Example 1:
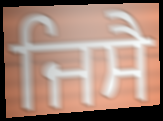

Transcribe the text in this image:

ਜਿਸੈ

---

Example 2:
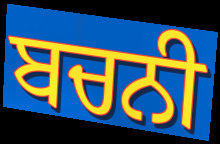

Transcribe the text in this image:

ਬਚਨੀ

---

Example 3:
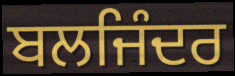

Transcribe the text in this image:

ਬਲਜਿੰਦਰ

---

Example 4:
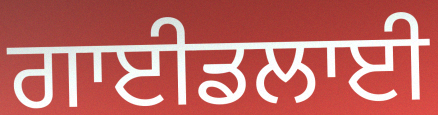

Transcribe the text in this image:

ਗਾਈਡਲਾਈ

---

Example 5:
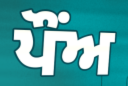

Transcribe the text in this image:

ਪੌਂਅ